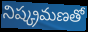
నిష్క్రమణతో